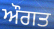
ਔਗਤ